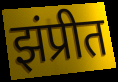
झंप्रीत